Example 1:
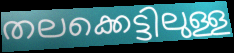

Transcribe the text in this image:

തലക്കെട്ടിലുള്ള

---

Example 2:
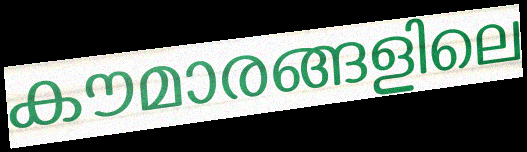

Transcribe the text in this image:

കൗമാരങ്ങളിലെ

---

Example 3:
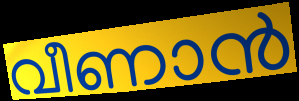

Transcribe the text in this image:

വീണാൻ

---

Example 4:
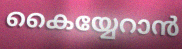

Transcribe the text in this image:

കൈയ്യേറാൻ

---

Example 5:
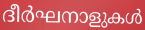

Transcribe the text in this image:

ദീർഘനാളുകൾ